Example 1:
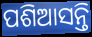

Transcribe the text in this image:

ପଶିଆସନ୍ତି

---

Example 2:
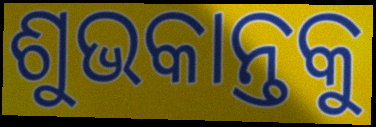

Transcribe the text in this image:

ଶୁଭକାନ୍ତକୁ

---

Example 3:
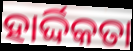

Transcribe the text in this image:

ହାର୍ଦ୍ଦିକତା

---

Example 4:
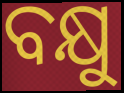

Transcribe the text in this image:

ବକ୍ଷୁ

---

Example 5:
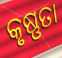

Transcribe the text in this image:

କୃଷ୍ଣତା